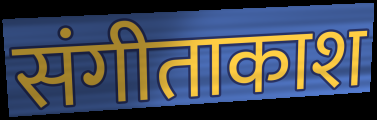
संगीताकाश